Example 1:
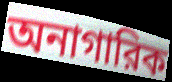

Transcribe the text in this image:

অনাগারিক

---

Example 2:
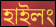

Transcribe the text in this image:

হাইলং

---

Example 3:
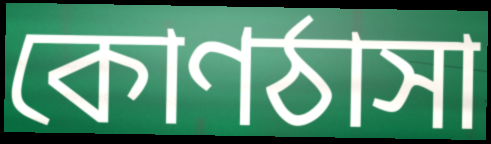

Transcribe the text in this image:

কোণঠাসা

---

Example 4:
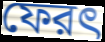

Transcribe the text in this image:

ফেরৎ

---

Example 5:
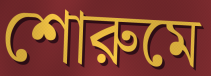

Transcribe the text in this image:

শোরুমে